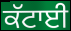
ਕੱਟਾਈ